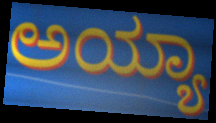
ಅಯ್ಯಾ